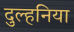
दुल्हनिया